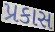
પ્રકાસ